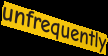
unfrequently